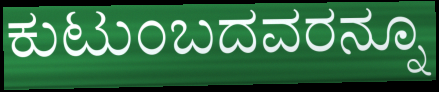
ಕುಟುಂಬದವರನ್ನೂ